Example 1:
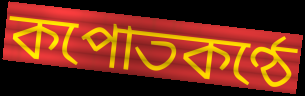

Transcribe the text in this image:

কপোতকণ্ঠে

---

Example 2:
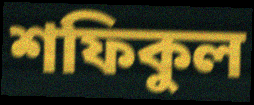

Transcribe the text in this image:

শফিকুল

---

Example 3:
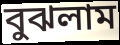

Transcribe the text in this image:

বুঝলাম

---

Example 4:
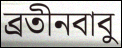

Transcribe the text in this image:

ব্রতীনবাবু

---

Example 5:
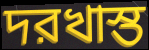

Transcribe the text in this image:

দরখাস্ত